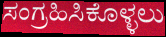
ಸಂಗ್ರಹಿಸಿಕೊಳ್ಳಲು